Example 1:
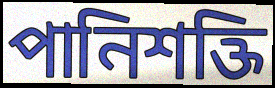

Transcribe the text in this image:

পানিশক্তি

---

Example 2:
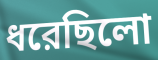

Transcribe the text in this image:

ধরেছিলো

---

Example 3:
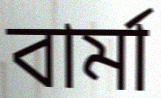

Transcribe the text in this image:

বার্মা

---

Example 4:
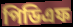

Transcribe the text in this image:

পিডিএফ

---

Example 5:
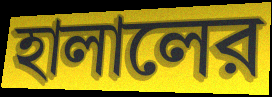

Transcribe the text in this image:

হালালের